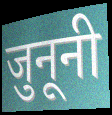
जुनूनी